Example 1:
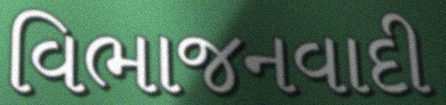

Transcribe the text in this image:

વિભાજનવાદી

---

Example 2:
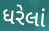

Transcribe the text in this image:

ધરેલાં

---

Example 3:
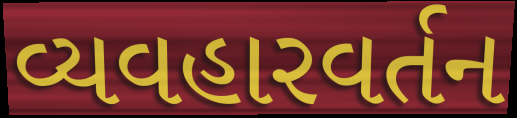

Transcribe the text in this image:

વ્યવહારવર્તન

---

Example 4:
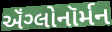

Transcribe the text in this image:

ઍંગ્લોનૉર્મન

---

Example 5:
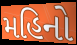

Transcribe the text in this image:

મહિનો